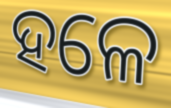
ହଳେ